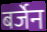
बर्जेन